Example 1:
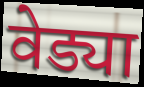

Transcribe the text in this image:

वेड्या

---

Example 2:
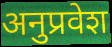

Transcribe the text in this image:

अनुप्रवेश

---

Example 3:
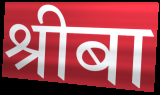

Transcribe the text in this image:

श्रीबा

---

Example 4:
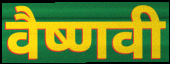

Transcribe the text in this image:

वैष्णवी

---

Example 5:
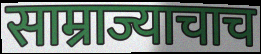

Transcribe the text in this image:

साम्राज्याचाच